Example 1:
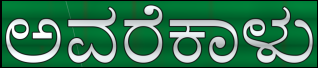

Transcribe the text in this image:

ಅವರೆಕಾಳು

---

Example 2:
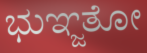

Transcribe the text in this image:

ಭುಞ್ಜತೋ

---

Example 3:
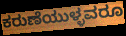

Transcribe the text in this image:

ಕರುಣೆಯುಳ್ಳವರೂ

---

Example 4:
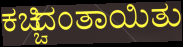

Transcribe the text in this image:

ಕಚ್ಚಿದಂತಾಯಿತು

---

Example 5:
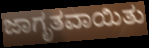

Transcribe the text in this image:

ಜಾಗೃತವಾಯಿತು